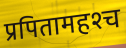
प्रपितामहश्च